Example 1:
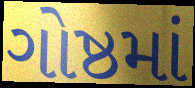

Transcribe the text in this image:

ગોષ્ઠમાં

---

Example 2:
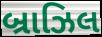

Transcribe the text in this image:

બ્રાઝિલ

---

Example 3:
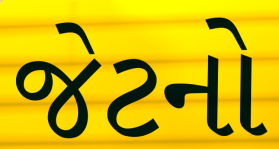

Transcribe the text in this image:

જેટનો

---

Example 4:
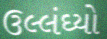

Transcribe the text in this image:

ઉલ્લંઘ્યો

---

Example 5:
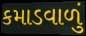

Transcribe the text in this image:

કમાડવાળું